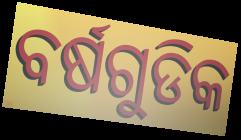
ବର୍ଷଗୁଡିକ